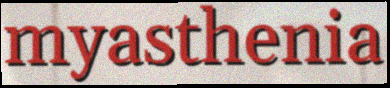
myasthenia